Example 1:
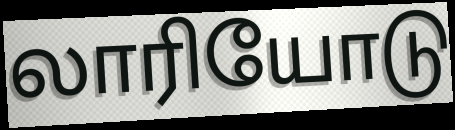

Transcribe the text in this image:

லாரியோடு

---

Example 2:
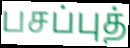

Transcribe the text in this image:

பசப்புத்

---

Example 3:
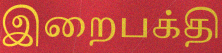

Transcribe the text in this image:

இறைபக்தி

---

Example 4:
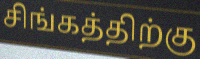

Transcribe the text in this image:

சிங்கத்திற்கு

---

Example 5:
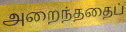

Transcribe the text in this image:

அறைந்ததைப்